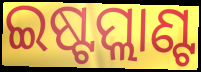
ଇଷ୍ଟପ୍ଲାଣ୍ଟ